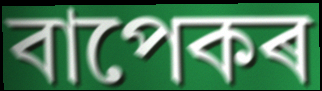
বাপেকৰ